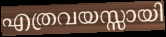
എത്രവയസ്സായി